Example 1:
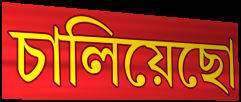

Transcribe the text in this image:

চালিয়েছো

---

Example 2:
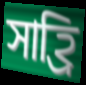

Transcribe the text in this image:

সাহ্রি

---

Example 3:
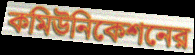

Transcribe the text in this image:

কমিউনিকেশনের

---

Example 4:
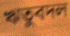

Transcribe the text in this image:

ঋতুবদল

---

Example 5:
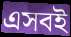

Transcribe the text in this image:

এসবই